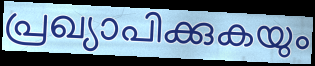
പ്രഖ്യാപിക്കുകയും